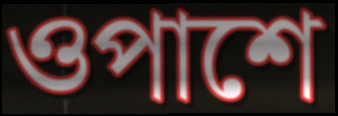
ওপাশে